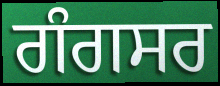
ਗੰਗਸਰ